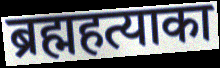
ब्रह्महत्याका